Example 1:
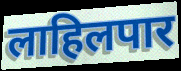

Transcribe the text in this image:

लाहिलपार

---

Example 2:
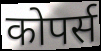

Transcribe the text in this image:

कोपर्स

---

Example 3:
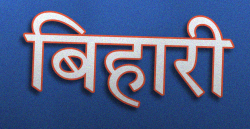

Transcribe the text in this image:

बिहारी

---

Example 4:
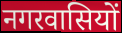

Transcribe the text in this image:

नगरवासियों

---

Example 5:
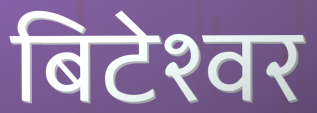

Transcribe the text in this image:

बिटेश्वर